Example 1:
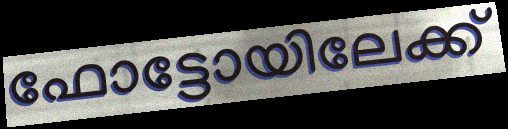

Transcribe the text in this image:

ഫോട്ടോയിലേക്ക്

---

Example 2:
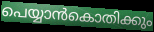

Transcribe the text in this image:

പെയ്യാൻകൊതിക്കും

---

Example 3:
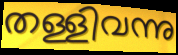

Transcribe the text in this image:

തള്ളിവന്നു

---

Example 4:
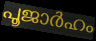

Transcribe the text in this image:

പൂജാർഹം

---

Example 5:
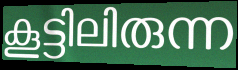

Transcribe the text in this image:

കൂട്ടിലിരുന്ന